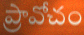
ప్రావోచం